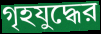
গৃহযুদ্ধের